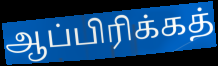
ஆப்பிரிக்கத்